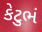
કેટુભં